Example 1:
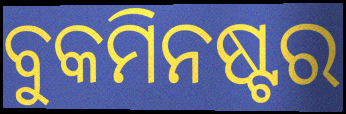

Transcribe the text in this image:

ବୁକମିନଷ୍ଟର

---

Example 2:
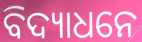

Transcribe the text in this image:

ବିଦ୍ୟାଧନେ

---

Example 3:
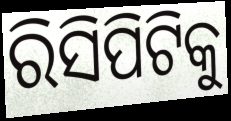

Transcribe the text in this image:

ରିସିପିଟିକୁ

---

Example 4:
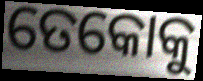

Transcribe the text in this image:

ତେକୋକୁ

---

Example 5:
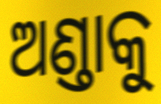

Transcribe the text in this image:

ଅଣ୍ଡାକୁ